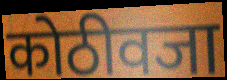
कोठीवजा